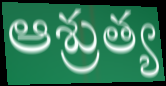
ఆశ్రుత్య